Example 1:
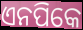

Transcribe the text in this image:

ଏନପିକେ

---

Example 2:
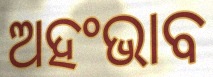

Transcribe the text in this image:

ଅହଂଭାବ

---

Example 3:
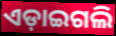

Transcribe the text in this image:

ଏଡ଼ାଇଗଲି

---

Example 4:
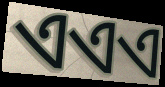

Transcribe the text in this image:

ଏଏଏ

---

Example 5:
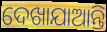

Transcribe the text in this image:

ଦେଖାଯାଆନ୍ତି